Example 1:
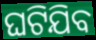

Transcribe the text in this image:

ଘଟିଯିବ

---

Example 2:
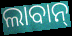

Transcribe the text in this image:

ଲାବାନ୍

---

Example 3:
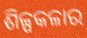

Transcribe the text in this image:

ଶିଳ୍ପକଳାର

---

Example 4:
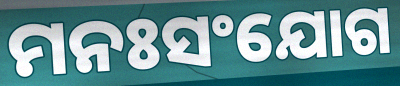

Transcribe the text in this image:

ମନଃସଂଯୋଗ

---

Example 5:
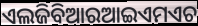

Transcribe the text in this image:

ଏଲଜିବିଆରଆଇଏମଏଚ